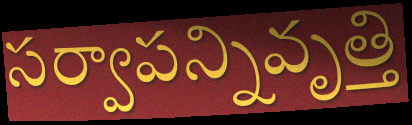
సర్వాపన్నివృత్తి